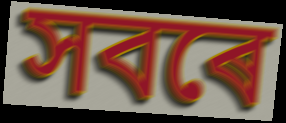
সবৰে